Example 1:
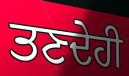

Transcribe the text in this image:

ਤਣਦੇਹੀ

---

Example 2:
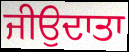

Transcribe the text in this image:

ਜੀਉਦਾਤਾ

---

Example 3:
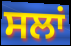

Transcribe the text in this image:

ਸਲਾਂ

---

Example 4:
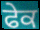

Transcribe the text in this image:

ਫੇਕ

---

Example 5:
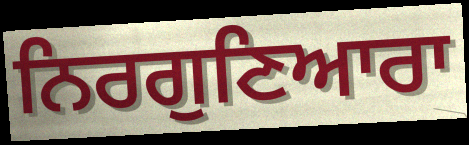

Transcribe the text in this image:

ਨਿਰਗੁਣਿਆਰਾ